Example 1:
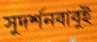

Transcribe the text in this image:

সুদর্শনবাবুই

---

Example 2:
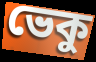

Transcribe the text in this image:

ভেকু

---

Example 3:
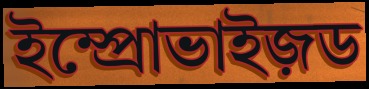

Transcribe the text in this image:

ইম্প্রোভাইজ়ড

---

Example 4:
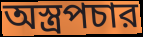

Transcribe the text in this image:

অস্ত্রপচার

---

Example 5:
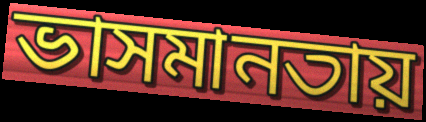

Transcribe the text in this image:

ভাসমানতায়